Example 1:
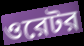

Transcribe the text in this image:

ওরেটর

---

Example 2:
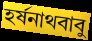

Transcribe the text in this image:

হর্ষনাথবাবু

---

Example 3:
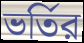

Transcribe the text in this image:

ভর্তির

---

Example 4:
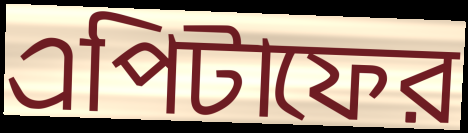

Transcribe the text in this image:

এপিটাফের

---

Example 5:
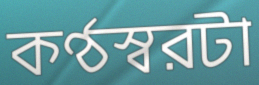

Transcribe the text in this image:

কণ্ঠস্বরটা